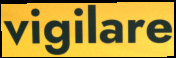
vigilare